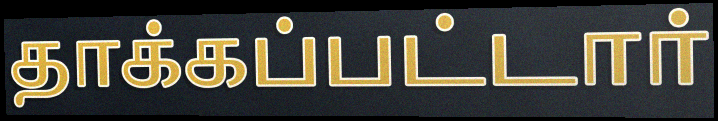
தாக்கப்பட்டார்